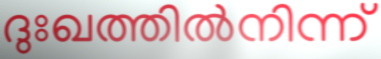
ദുഃഖത്തിൽനിന്ന്